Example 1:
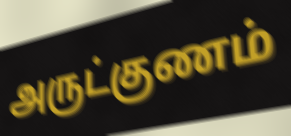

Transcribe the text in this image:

அருட்குணம்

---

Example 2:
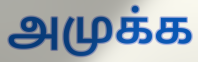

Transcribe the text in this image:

அமுக்க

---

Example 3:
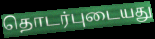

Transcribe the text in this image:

தொடர்புடையது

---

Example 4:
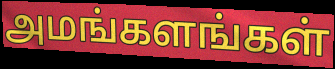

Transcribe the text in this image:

அமங்களங்கள்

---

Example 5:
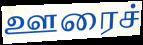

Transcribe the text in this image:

ஊரைச்